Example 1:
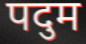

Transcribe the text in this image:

पदुम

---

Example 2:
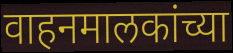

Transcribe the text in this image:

वाहनमालकांच्या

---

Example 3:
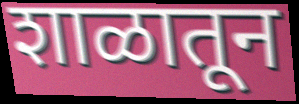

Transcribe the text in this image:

शाळातून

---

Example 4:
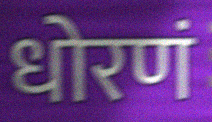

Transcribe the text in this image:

धोरणं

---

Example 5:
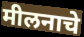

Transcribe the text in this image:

मीलनाचे